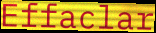
Effaclar